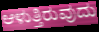
ಆಳುತ್ತಿರುವುದು